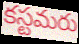
కస్టమరు